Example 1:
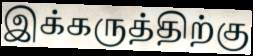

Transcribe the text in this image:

இக்கருத்திற்கு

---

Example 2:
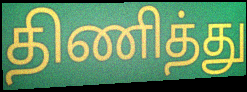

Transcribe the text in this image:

திணித்து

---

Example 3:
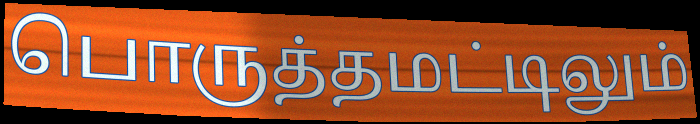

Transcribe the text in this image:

பொருத்தமட்டிலும்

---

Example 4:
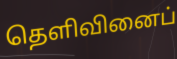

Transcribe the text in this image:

தெளிவினைப்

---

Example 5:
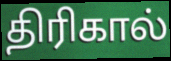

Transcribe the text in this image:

திரிகால்